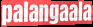
palangaala